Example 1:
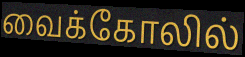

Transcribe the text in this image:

வைக்கோலில்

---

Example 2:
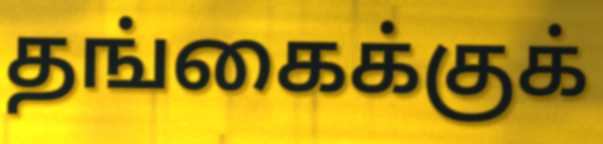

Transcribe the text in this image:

தங்கைக்குக்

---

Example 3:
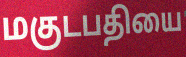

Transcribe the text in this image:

மகுடபதியை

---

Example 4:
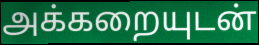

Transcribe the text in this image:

அக்கறையுடன்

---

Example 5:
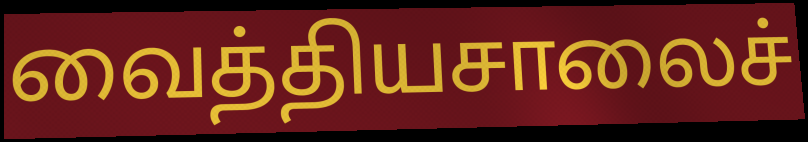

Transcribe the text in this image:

வைத்தியசாலைச்